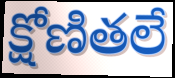
క్షోణితలే